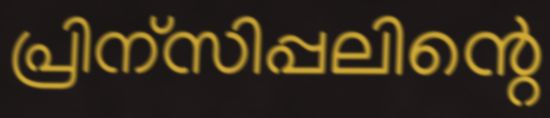
പ്രിന്സിപ്പലിന്റെ